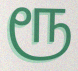
ரூ